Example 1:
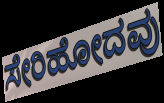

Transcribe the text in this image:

ಸೇರಿಹೋದವು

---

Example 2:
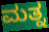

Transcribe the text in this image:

ಮತ್ನ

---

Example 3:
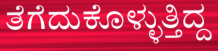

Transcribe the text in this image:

ತೆಗೆದುಕೊಳ್ಳುತ್ತಿದ್ದ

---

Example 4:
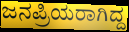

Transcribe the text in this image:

ಜನಪ್ರಿಯರಾಗಿದ್ದ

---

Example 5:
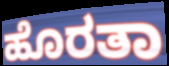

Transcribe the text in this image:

ಹೊರತಾ